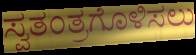
ಸ್ವತಂತ್ರಗೊಳಿಸಲು